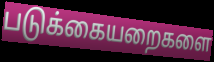
படுக்கையறைகளை